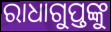
ରାଧାଗୁପ୍ତଙ୍କୁ